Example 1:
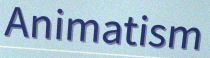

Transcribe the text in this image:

Animatism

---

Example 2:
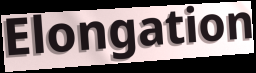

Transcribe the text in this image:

Elongation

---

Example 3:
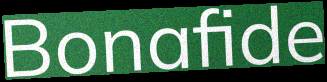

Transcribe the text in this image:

Bonafide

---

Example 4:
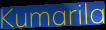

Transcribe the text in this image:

Kumarila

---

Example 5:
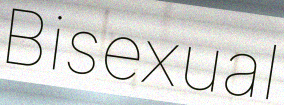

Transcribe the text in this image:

Bisexual